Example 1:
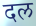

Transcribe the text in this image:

दल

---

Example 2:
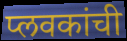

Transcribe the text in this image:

प्लवकांची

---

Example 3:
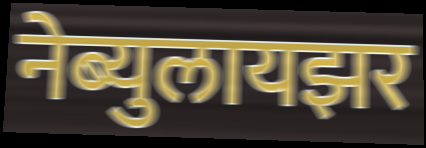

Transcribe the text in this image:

नेब्युलायझर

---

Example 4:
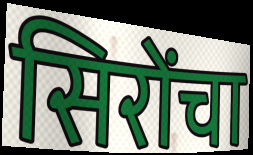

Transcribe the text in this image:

सिरोंचा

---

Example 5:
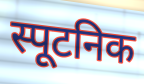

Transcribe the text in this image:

स्पूटनिक